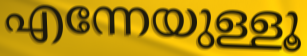
എന്നേയുള്ളൂ